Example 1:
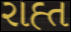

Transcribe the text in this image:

રાહ્ત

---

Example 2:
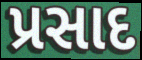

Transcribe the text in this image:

પ્રસાદ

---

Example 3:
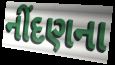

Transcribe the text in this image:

નીંદણના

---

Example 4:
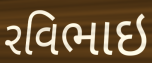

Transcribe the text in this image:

રવિભાઇ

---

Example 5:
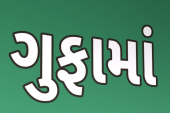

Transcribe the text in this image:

ગુફામાં